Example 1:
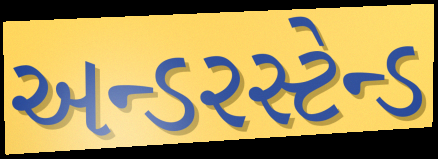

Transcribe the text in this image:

અન્ડરસ્ટેન્ડ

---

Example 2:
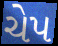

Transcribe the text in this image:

ચેપ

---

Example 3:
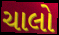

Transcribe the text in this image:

ચાલો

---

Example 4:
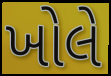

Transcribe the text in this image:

ખોલે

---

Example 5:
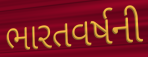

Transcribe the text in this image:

ભારતવર્ષની